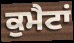
ਕੁਮੈਟਾਂ